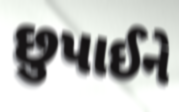
છુપાઈને